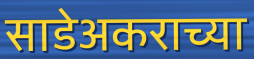
साडेअकराच्या